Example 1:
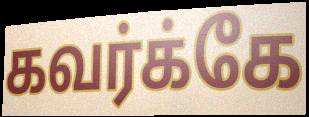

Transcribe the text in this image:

கவர்க்கே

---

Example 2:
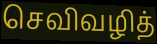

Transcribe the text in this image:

செவிவழித்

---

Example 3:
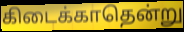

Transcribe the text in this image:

கிடைக்காதென்று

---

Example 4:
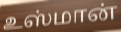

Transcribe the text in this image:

உஸ்மான்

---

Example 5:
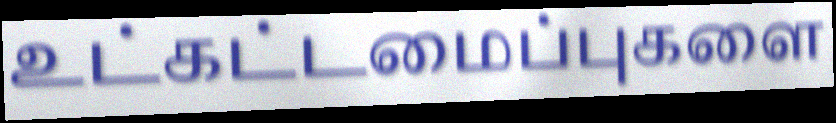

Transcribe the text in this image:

உட்கட்டமைப்புகளை